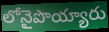
లోనైపొయ్యారు